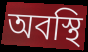
অবস্থি